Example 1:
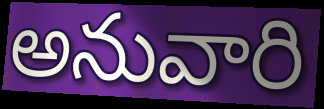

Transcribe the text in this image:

అనువారి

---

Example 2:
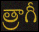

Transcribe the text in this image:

త్రాగీ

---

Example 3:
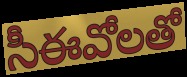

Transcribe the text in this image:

సీఈవోలతో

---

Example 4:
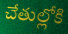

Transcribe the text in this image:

చేతుల్లోకి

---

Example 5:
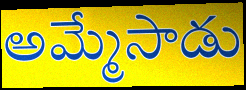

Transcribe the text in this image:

అమ్మేసాడు